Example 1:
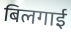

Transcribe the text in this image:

बिलगाई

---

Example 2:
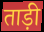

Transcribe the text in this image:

ताड़ी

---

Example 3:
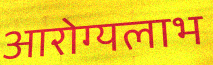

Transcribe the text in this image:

आरोग्यलाभ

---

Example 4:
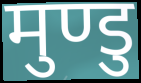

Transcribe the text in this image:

मुण्डु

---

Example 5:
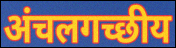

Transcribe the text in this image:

अंचलगच्छीय